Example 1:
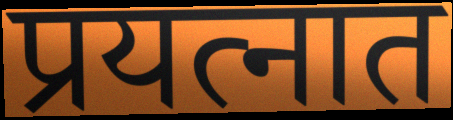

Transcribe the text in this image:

प्रयत्नात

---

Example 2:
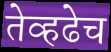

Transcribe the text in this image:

तेव्हढेच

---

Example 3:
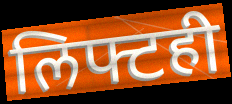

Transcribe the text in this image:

लिफ्टही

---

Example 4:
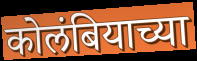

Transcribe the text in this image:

कोलंबियाच्या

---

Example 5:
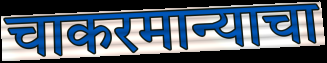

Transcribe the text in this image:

चाकरमान्याचा